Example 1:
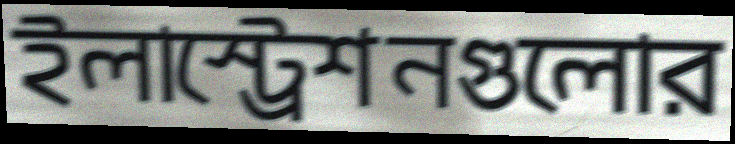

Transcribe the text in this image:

ইলাস্ট্রেশনগুলোর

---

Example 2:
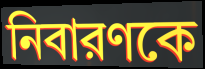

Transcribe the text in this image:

নিবারণকে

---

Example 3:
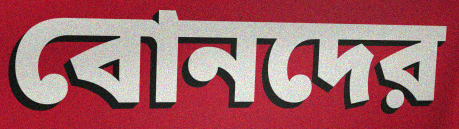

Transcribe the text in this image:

বোনদের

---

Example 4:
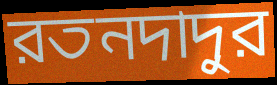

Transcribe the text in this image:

রতনদাদুর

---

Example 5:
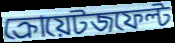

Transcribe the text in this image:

ক্রোয়েটজফেল্ট